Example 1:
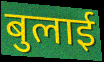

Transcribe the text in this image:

बुलाई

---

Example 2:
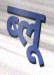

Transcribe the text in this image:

ब्लू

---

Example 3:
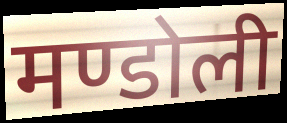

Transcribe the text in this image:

मण्डोली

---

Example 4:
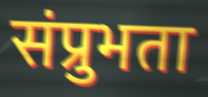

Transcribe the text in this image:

संप्रुभता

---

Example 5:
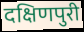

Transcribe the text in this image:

दक्षिणपुरी